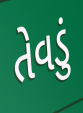
તેવડું